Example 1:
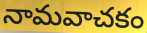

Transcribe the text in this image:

నామవాచకం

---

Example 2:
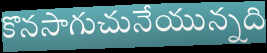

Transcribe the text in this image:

కొనసాగుచునేయున్నది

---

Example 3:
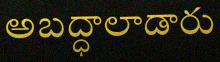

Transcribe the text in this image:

అబద్ధాలాడారు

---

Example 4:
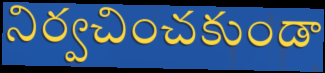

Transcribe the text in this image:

నిర్వచించకుండా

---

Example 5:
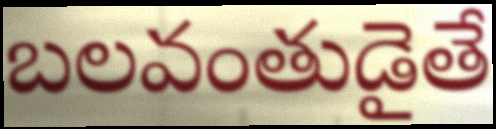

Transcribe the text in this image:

బలవంతుడైతే